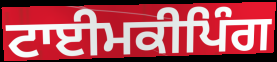
ਟਾਈਮਕੀਪਿੰਗ